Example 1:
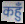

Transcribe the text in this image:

कहुँ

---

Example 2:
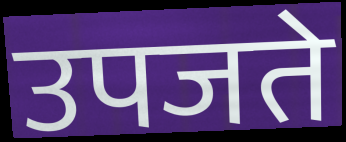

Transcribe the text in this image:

उपजते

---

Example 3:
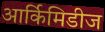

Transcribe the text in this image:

आर्किमिडीज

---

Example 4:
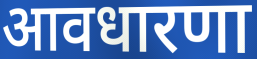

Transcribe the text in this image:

आवधारणा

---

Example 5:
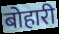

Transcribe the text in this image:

बोहारी